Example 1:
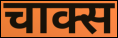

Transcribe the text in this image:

चाक्स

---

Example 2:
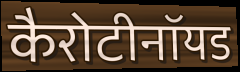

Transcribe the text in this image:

कैरोटीनॉयड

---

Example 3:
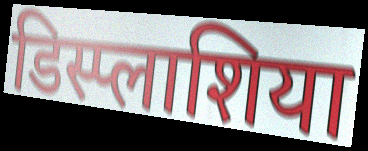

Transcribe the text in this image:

डिस्प्लाशिया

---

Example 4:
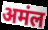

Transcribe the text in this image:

अमंल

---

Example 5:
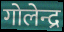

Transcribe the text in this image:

गोलेन्द्र